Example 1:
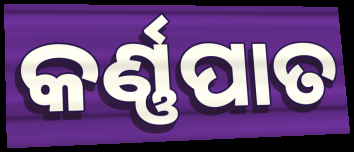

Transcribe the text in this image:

କର୍ଣ୍ଣପାତ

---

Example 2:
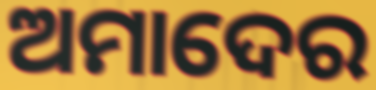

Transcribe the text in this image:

ଅମାଦେର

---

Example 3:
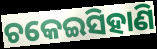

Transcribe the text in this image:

ଚକେଇସିହାଣି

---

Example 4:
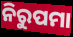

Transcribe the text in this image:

ନିରୁପମା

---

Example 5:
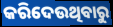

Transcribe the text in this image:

କରିଦେଉଥିବାରୁ